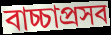
বাচ্চাপ্রসব